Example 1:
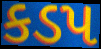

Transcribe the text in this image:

કડપ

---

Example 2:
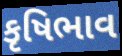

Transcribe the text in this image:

કૃષિભાવ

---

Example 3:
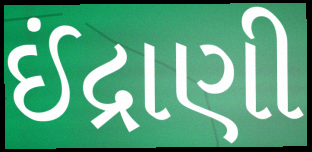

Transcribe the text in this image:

ઈંદ્રાણી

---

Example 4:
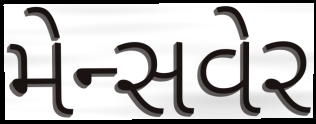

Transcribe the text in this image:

મેન્સવેર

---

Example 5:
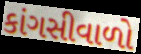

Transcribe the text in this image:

કાંગસીવાળો